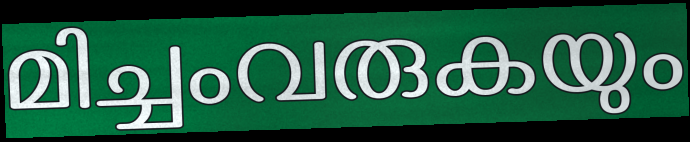
മിച്ചംവരുകയും